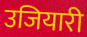
उजियारी